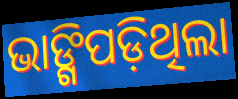
ଭାଙ୍ଗିପଡ଼ିଥିଲା